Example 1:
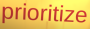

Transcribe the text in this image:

prioritize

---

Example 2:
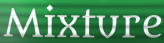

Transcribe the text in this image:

Mixture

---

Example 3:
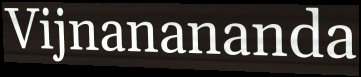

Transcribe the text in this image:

Vijnanananda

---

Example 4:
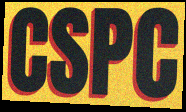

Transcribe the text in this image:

CSPC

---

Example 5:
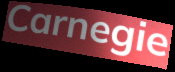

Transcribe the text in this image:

Carnegie